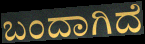
ಬಂದಾಗಿದೆ